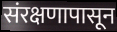
संरक्षणापासून